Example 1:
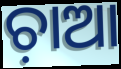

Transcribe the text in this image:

ଚ଼ାଆ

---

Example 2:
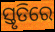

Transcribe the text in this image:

ସ୍ତୃତିରେ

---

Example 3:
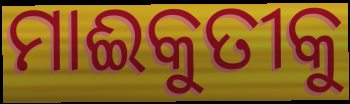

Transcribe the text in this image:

ମାଈକୁତୀକୁ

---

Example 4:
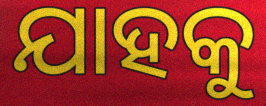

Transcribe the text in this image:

ଯାହକୁ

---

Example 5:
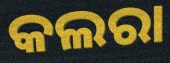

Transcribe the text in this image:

କଲରା